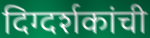
दिग्दर्शकांची